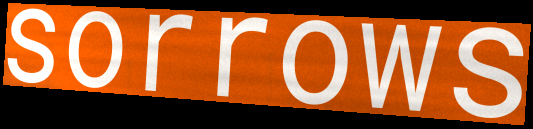
sorrows